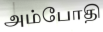
அம்போதி